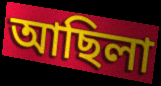
আছিলা